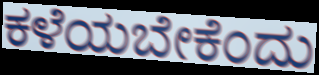
ಕಳೆಯಬೇಕೆಂದು